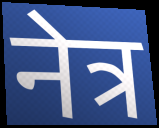
नेत्र